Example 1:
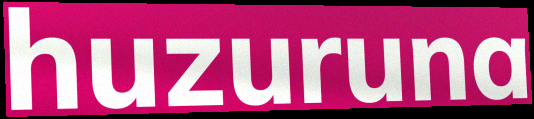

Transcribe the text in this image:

huzuruna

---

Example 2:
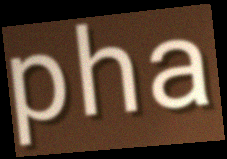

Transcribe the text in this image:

pha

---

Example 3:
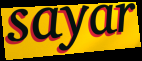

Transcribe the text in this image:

sayar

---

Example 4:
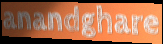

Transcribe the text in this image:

anandghare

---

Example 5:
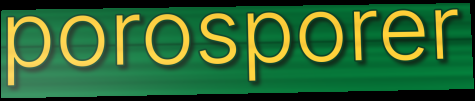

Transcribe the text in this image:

porosporer